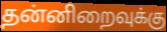
தன்னிறைவுக்கு